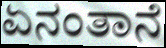
ಏನಂತಾನೆ